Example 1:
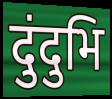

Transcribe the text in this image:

दुंदुभि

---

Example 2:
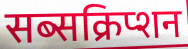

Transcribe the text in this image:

सब्सक्रिप्शन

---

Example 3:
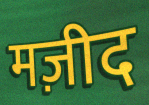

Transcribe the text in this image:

मज़ीद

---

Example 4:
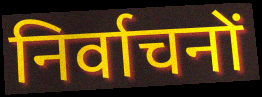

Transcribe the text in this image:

निर्वाचनों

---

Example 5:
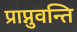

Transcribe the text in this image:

प्राप्नुवन्ति